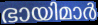
ഭായിമാർ